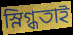
স্নিগ্ধতাই